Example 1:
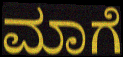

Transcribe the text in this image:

ಮಾಗೆ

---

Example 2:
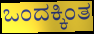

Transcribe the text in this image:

ಒಂದಕ್ಕಿಂತ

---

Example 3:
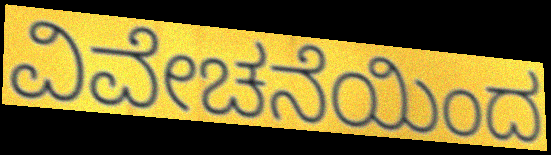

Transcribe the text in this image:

ವಿವೇಚನೆಯಿಂದ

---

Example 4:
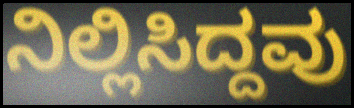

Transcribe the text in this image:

ನಿಲ್ಲಿಸಿದ್ದವು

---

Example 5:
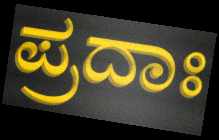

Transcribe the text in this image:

ಪ್ರದಾಃ